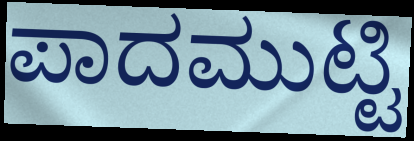
ಪಾದಮುಟ್ಟಿ